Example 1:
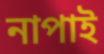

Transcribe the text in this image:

নাপাই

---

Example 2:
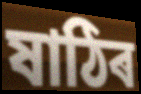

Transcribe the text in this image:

ষাঠিৰ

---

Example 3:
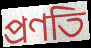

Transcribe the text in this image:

প্ৰণতি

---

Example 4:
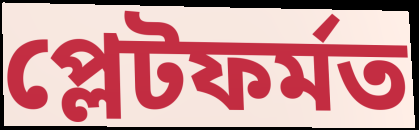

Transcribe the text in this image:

প্লেটফৰ্মত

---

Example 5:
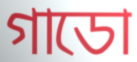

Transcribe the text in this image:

গাডো